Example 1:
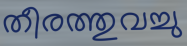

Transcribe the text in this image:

തീരത്തുവച്ചു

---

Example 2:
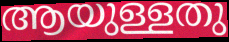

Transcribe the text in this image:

ആയുള്ളതു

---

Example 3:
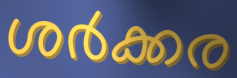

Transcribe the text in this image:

ശർക്കര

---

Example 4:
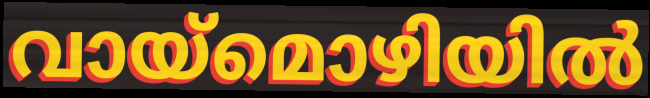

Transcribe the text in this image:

വായ്മൊഴിയിൽ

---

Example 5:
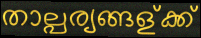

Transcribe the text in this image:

താല്പര്യങ്ങള്ക്ക്